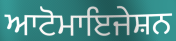
ਆਟੋਮਾਇਜੇਸ਼ਨ